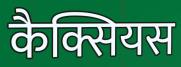
कैक्सियस